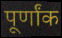
पूर्णांक